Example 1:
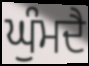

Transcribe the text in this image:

ਘੁੰਮਦੈ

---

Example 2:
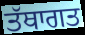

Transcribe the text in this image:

ਤੱਥਾਗਤ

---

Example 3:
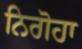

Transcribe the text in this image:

ਨਿਗੋਹਾ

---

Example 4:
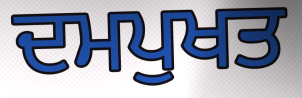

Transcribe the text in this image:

ਦਮਪੁਖਤ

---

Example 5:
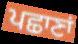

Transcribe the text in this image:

ਪਛਾਣਾਂ